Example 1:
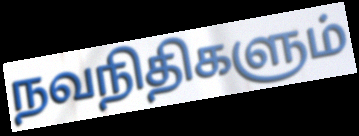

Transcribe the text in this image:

நவநிதிகளும்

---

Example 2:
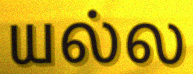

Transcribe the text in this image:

யல்ல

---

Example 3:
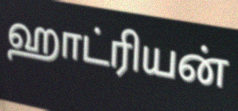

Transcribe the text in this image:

ஹாட்ரியன்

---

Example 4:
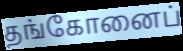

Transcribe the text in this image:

தங்கோனைப்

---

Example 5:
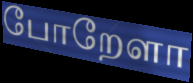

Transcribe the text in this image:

போறேளா